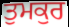
ਤੁਮਕੁਰ